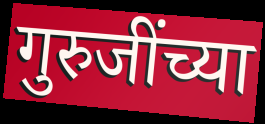
गुरुजींच्या